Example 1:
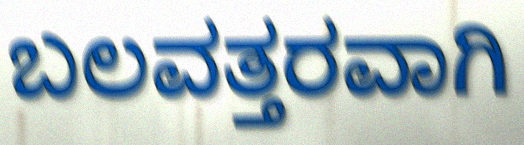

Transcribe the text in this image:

ಬಲವತ್ತರವಾಗಿ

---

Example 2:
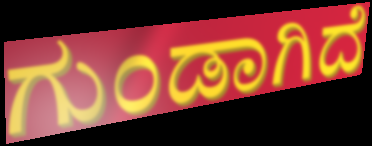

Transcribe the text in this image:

ಗುಂಡಾಗಿದೆ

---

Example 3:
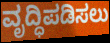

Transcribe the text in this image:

ವೃದ್ಧಿಪಡಿಸಲು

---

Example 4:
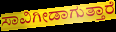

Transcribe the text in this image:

ಸಾವಿಗೀಡಾಗುತ್ತಾರೆ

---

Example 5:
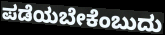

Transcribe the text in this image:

ಪಡೆಯಬೇಕೆಂಬುದು